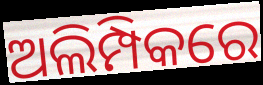
ଅଲିମ୍ପିକରେ